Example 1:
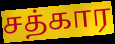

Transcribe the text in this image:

சத்கார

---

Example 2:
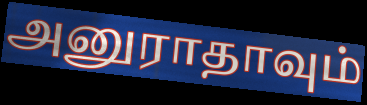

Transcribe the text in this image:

அனுராதாவும்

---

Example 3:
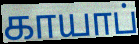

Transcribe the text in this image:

காயாப்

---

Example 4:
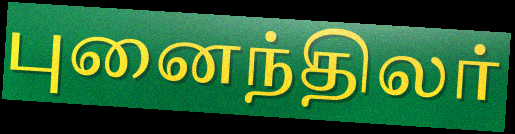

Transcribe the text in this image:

புனைந்திலர்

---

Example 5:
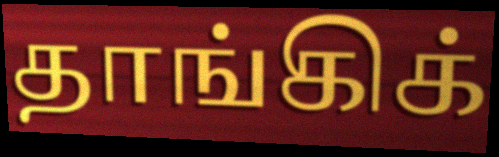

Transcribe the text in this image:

தாங்கிக்